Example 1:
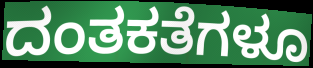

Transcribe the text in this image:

ದಂತಕತೆಗಳೂ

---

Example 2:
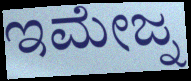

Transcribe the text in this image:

ಇಮೇಜ್ನ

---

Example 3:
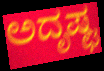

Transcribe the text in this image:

ಅದೃಷ್ಟ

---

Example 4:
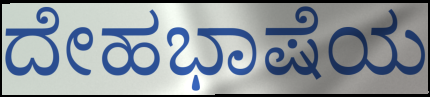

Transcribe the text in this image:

ದೇಹಭಾಷೆಯ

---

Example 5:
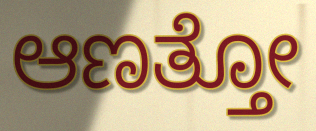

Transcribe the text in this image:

ಆಣತ್ತೋ